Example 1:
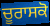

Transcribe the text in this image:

ਚੂਰਾਸਕੋ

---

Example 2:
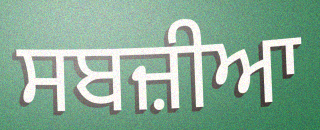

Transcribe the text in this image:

ਸਬਜ਼ੀਆ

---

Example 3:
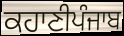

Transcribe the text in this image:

ਕਹਾਣੀਪੰਜਾਬ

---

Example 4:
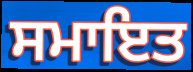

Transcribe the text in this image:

ਸਮਾਇਤ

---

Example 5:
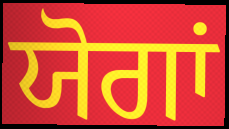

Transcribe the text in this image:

ਯੋਗਾਂ